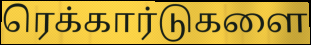
ரெக்கார்டுகளை